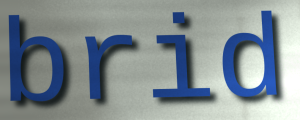
brid